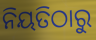
ନିୟତିଠାରୁ